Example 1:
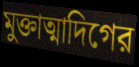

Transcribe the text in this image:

মুক্তাত্মাদিগের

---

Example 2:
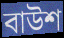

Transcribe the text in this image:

বাউশ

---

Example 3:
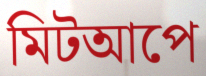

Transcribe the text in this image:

মিটআপে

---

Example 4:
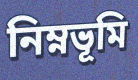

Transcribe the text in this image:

নিম্নভূমি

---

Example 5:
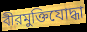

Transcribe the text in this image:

বীরমুক্তিযোদ্ধা